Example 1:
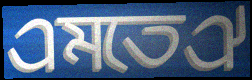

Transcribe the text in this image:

এমতেঐ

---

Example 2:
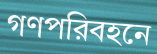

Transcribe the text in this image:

গণপরিবহনে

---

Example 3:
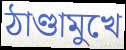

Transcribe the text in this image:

ঠাণ্ডামুখে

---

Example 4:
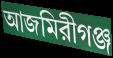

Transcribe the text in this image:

আজমিরীগঞ্জ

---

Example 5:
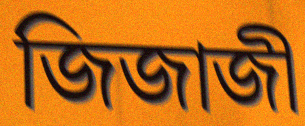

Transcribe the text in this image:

জিজাজী